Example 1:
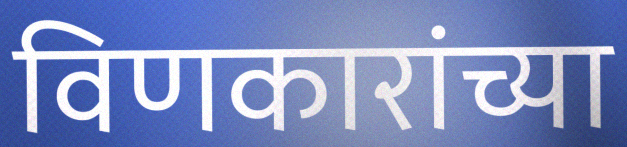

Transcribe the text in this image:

विणकारांच्या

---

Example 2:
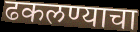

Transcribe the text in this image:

ढकलण्याचा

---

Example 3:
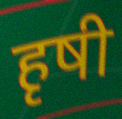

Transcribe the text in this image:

हृषी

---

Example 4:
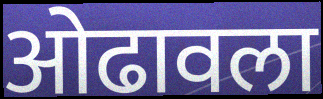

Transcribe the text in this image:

ओढावला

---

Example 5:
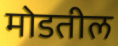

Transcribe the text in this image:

मोडतील